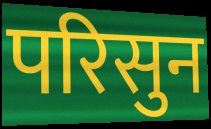
परिसुन